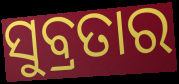
ସୁବ୍ରତାର